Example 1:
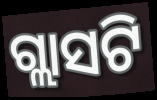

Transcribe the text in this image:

ଗ୍ଲାସଟି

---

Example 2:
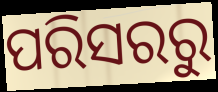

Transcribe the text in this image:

ପରିସରରୁ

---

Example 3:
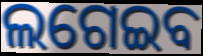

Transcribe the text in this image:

ଲଗେଇବ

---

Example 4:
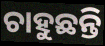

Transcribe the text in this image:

ଚାହୁଛନ୍ତି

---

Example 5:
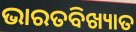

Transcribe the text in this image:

ଭାରତବିଖ୍ୟାତ